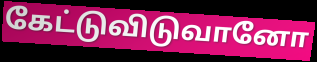
கேட்டுவிடுவானோ